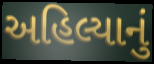
અહિલ્યાનું